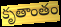
కృతాంతం